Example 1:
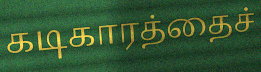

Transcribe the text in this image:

கடிகாரத்தைச்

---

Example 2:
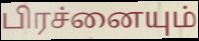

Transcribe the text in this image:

பிரச்னையும்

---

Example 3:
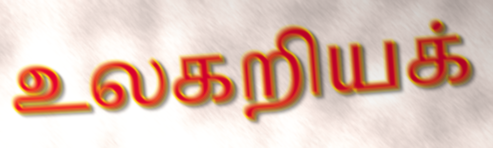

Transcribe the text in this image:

உலகறியக்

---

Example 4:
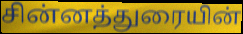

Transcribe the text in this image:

சின்னத்துரையின்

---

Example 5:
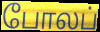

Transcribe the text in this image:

போலப்